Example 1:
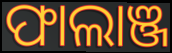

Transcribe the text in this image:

ଫାଲାଞ୍ଜ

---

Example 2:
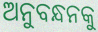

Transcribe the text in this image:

ଅନୁବନ୍ଧନକୁ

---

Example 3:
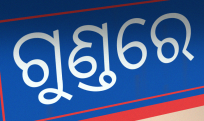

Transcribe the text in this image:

ଗୁଣ୍ଡରେ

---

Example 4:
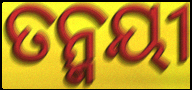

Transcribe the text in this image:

ତନ୍ମୟୀ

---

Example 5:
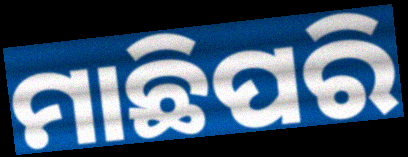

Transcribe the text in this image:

ମାଛିପରି